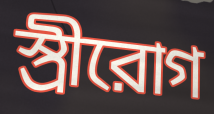
স্ত্রীরোগ